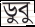
ডুবু